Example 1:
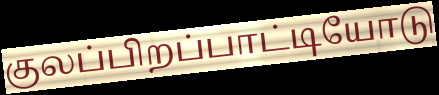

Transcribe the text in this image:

குலப்பிறப்பாட்டியோடு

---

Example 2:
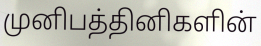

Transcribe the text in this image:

முனிபத்தினிகளின்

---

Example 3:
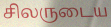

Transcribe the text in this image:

சிலருடைய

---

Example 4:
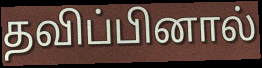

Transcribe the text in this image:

தவிப்பினால்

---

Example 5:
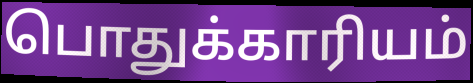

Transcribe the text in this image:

பொதுக்காரியம்